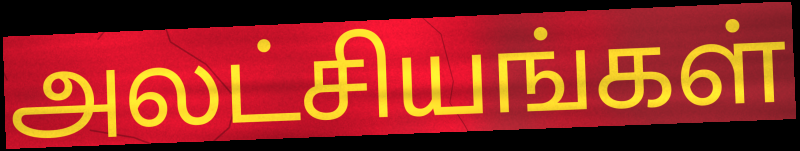
அலட்சியங்கள்